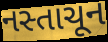
નસ્તાચૂન